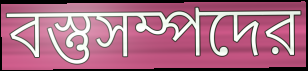
বস্তুসম্পদের